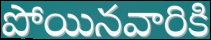
పోయినవారికి